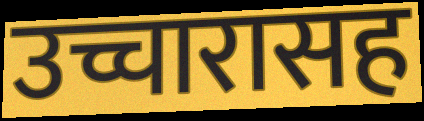
उच्चारासह